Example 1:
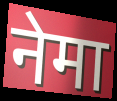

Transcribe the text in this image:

नेमा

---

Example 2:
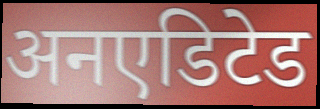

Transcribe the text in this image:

अनएडिटेड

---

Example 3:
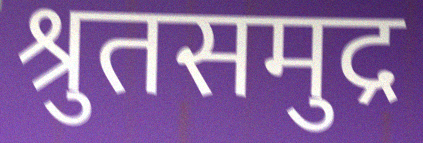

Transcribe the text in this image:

श्रुतसमुद्र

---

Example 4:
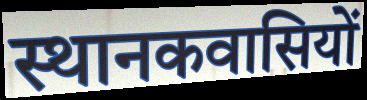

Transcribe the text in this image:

स्थानकवासियों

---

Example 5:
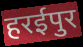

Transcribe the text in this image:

हरईपुर